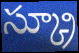
స్క్రూ